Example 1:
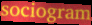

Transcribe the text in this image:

sociogram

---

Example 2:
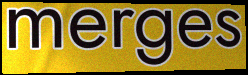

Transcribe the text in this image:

merges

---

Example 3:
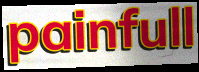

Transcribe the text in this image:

painfull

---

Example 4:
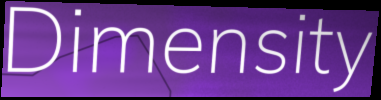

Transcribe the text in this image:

Dimensity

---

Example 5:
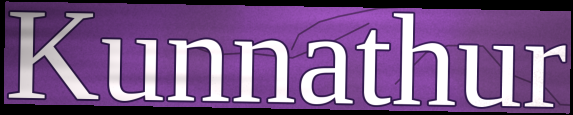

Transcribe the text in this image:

Kunnathur